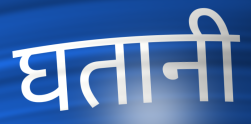
घतानी